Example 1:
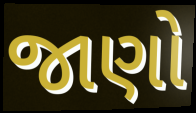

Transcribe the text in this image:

જાણો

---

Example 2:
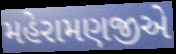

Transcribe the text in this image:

મહેરામણજીએ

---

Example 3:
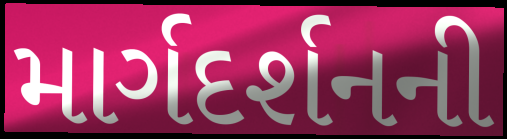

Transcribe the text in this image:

માર્ગદર્શનની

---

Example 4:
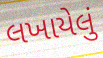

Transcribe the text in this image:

લખાયેલું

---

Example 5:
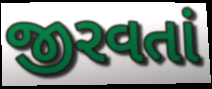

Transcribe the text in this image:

જીરવતાં